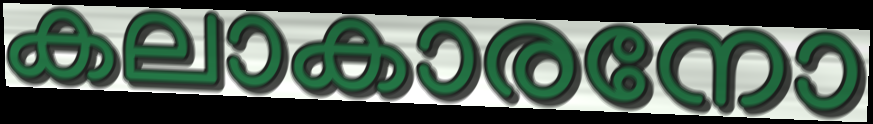
കലാകാരനോ